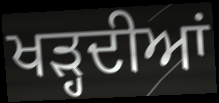
ਖੜ੍ਹਦੀਆਂ